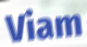
Viam